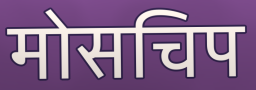
मोसचिप